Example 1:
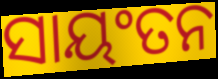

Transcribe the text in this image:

ସାୟଂତନ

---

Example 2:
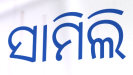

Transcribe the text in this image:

ସାମିଲି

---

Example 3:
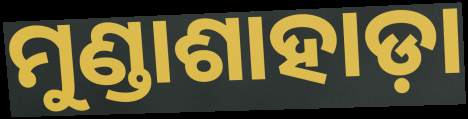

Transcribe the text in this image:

ମୁଣ୍ଡାଶାହାଡ଼ା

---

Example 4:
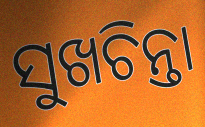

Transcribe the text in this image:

ସୁଖଚିନ୍ତା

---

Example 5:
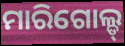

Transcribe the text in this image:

ମାରିଗୋଲ୍ଡ୍